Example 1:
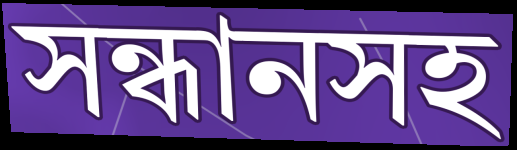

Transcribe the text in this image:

সন্ধানসহ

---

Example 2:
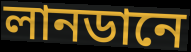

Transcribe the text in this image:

লানডানে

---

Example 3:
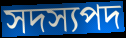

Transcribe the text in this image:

সদস্যপদ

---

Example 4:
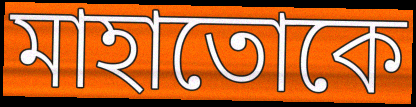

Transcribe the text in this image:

মাহাতোকে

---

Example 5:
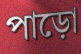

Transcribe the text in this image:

পাড়ো